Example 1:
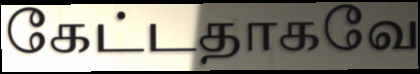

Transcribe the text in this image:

கேட்டதாகவே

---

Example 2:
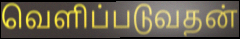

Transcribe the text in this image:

வெளிப்படுவதன்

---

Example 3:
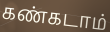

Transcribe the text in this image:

கண்கடாம்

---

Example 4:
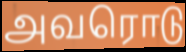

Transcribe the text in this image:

அவரொடு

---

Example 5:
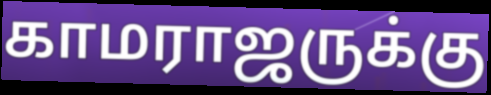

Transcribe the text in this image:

காமராஜருக்கு